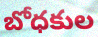
బోధకుల